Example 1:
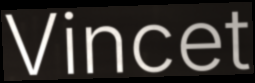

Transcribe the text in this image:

Vincet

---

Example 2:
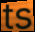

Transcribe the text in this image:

ts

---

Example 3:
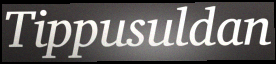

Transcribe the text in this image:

Tippusuldan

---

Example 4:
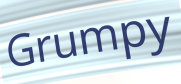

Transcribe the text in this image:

Grumpy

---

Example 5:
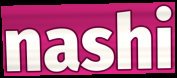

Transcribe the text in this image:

nashi